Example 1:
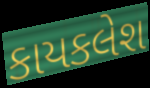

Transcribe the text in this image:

કાયકલેશ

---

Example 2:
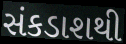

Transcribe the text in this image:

સંકડાશથી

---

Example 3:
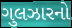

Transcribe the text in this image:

ગુલઝારનો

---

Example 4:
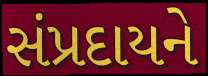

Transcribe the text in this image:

સંપ્રદાયને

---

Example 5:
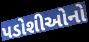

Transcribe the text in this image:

પડોશીઓનો